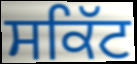
ਸਕਿੱਟ